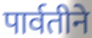
पार्वतीने